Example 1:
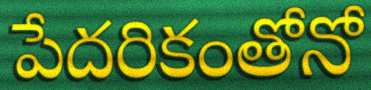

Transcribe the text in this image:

పేదరికంతోనో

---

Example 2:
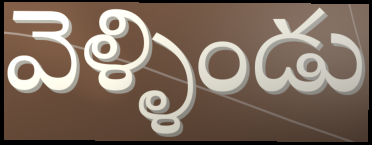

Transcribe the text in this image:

వెళ్ళిండు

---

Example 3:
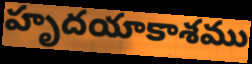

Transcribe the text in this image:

హృదయాకాశము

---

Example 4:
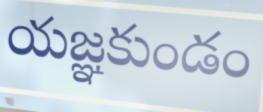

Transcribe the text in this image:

యజ్ఞకుండం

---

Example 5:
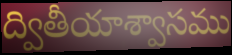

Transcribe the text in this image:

ద్వితీయాశ్వాసము